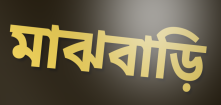
মাঝবাড়ি